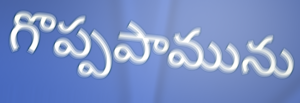
గొప్పపామును